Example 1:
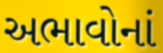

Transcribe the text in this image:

અભાવોનાં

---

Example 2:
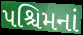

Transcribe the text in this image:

પશ્ચિમનાં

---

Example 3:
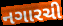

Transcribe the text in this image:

નગારચી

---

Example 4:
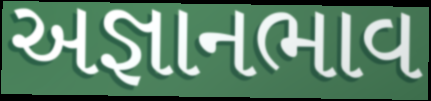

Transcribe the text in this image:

અજ્ઞાનભાવ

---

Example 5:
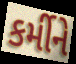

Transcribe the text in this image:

કર્મીને